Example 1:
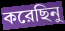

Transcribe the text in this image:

করেছিনু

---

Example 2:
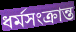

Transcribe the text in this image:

ধর্মসংক্রান্ত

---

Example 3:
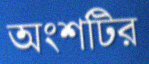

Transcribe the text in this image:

অংশটির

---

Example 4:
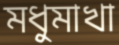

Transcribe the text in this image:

মধুমাখা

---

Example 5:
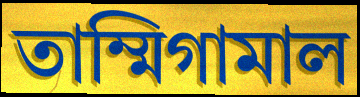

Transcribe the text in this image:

তাম্মিগামাল